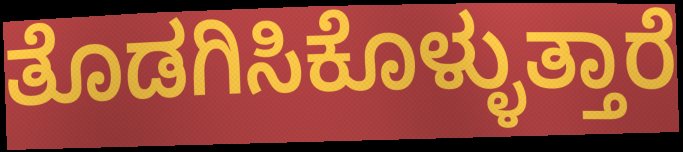
ತೊಡಗಿಸಿಕೊಳ್ಳುತ್ತಾರೆ